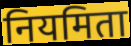
नियमिता